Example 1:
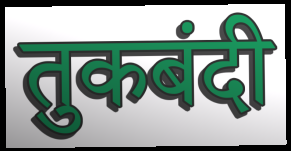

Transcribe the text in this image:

तुकबंदी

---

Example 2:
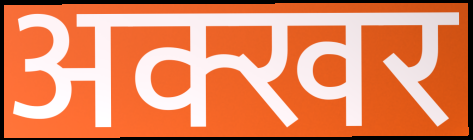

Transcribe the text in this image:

अक्खर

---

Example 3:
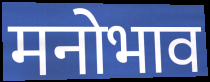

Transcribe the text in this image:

मनोभाव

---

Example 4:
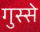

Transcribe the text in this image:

गुस्‍से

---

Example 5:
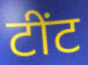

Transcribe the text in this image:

टींट